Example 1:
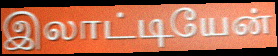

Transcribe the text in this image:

இலாட்டியேன்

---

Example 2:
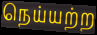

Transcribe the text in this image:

நெய்யற்ற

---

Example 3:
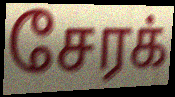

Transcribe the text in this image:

சேரக்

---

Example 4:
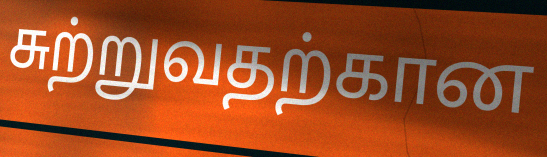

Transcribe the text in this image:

சுற்றுவதற்கான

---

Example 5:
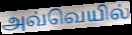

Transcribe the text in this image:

அவ்வெயில்